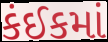
કંઈકમાં